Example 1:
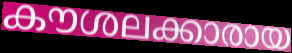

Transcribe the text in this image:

കൗശലക്കാരായ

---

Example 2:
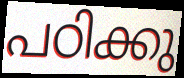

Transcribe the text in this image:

പഠിക്കു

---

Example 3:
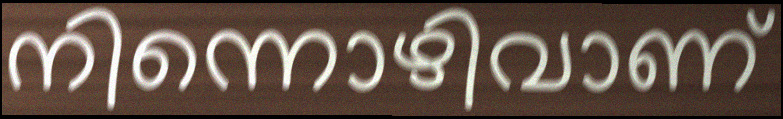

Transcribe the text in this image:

നിന്നൊഴിവാണ്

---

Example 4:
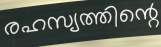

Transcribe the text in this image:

രഹസ്യത്തിന്റെ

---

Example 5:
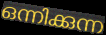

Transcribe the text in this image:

ഒന്നിക്കുന്ന